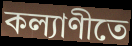
কল্যাণীতে